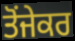
ਤੋਂਜੇਕਰ